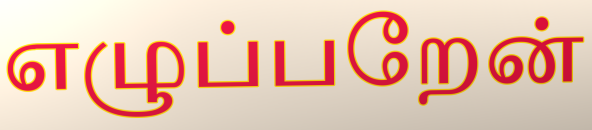
எழுப்பறேன்